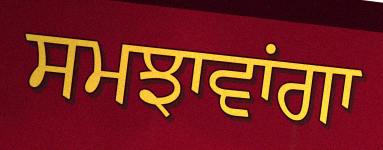
ਸਮਝਾਵਾਂਗਾ